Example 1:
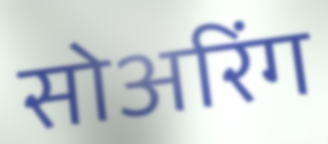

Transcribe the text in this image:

सोअरिंग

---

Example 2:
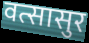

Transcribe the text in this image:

वत्सासुर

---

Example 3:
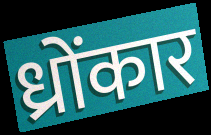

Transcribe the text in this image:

ध्रोंकार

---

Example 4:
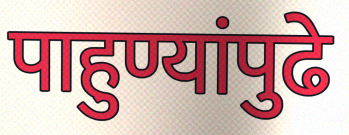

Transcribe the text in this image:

पाहुण्यांपुढे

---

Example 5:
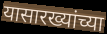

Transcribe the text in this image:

यासारख्यांच्या